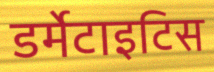
डर्मेटाइटिस